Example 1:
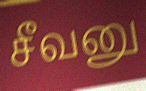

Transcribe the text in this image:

சீவனு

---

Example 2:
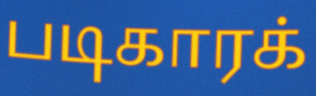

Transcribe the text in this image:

படிகாரக்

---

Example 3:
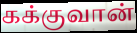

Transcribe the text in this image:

கக்குவான்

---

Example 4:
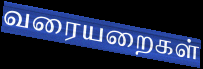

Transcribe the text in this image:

வரையறைகள்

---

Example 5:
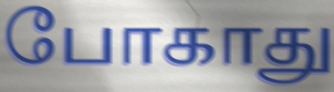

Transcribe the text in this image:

போகாது